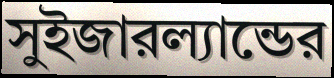
সুইজারল্যান্ডের